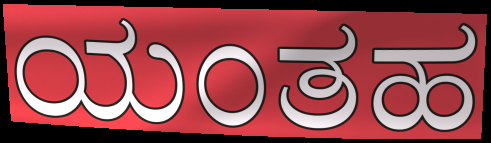
ಯಂತಹ